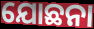
ଯୋଛନା